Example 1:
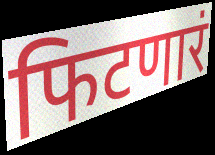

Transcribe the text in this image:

फिटणारं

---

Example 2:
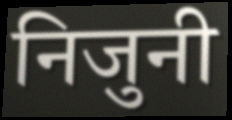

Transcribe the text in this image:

निजुनी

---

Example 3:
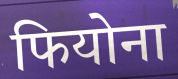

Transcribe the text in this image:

फियोना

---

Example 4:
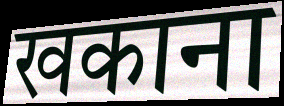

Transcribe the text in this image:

खकाना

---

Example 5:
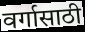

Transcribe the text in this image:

वर्गासाठी